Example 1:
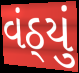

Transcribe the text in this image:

વંઠ્યું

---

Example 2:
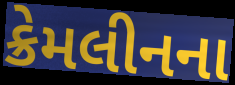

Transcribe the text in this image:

ક્રેમલીનના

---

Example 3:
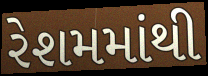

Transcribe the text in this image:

રેશમમાંથી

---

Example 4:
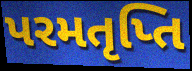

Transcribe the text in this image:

પરમતૃપ્તિ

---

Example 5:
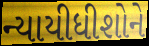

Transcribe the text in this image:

ન્યાયીધીશોને